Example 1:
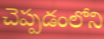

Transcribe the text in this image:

చెప్పడంలోని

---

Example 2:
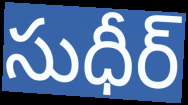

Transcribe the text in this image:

సుధీర్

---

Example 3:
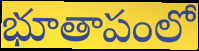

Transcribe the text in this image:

భూతాపంలో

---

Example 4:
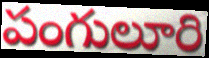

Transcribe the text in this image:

పంగులూరి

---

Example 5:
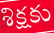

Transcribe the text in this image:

శిక్షకు